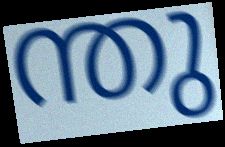
ന്തു